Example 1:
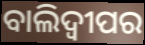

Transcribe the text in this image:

ବାଲିଦ୍ୱୀପର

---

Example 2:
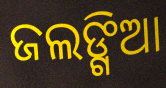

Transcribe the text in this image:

ଜଲଙ୍ଗିଆ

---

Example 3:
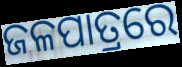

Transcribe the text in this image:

ଜଳପାତ୍ରରେ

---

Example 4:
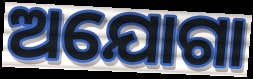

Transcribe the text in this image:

ଅଯୋଗା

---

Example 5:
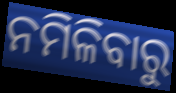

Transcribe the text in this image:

ନମିଳିବାରୁ